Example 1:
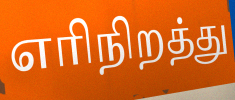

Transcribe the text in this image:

எரிநிறத்து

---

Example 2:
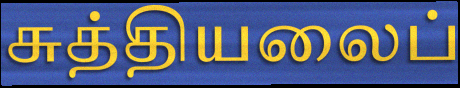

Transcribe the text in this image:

சுத்தியலைப்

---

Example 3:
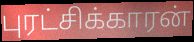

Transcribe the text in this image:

புரட்சிக்காரன்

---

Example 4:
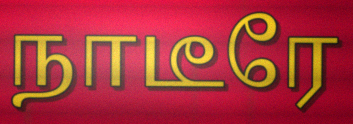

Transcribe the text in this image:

நாடீரே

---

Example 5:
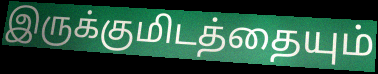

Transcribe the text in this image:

இருக்குமிடத்தையும்